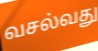
வசல்வது